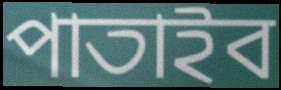
পাতাইব